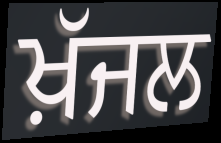
ਖ਼ੱਜਲ